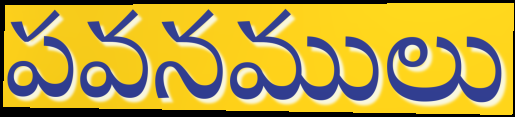
పవనములు